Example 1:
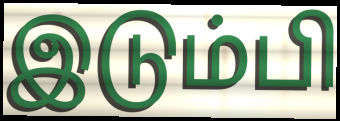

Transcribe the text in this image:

இடும்பி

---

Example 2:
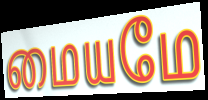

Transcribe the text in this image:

மையமே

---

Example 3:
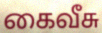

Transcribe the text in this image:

கைவீசு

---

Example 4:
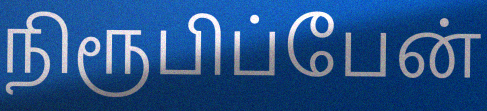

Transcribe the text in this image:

நிரூபிப்பேன்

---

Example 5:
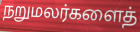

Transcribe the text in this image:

நறுமலர்களைத்